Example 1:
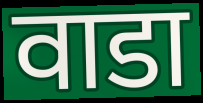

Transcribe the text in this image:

वाडा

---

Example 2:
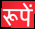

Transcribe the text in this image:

रूपें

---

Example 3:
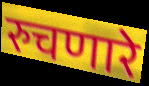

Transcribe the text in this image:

रुचणारे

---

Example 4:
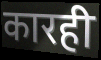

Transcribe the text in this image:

कारही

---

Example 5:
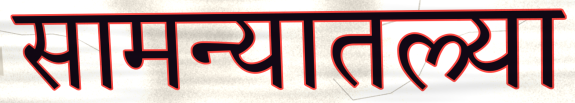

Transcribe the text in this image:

सामन्यातल्या